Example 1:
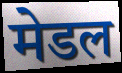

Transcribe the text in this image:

मेडल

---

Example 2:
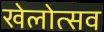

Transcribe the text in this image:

खेलोत्सव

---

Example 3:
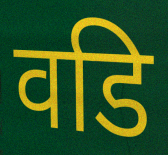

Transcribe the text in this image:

वडि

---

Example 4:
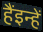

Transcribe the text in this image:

हैंइन्हें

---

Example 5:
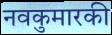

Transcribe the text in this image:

नवकुमारकी